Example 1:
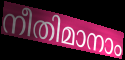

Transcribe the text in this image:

നീതിമാനാം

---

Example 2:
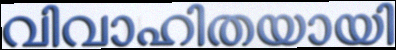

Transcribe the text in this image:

വിവാഹിതയായി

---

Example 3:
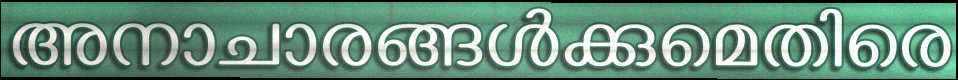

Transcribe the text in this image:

അനാചാരങ്ങൾക്കുമെതിരെ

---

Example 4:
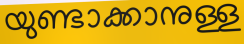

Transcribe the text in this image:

യുണ്ടാക്കാനുള്ള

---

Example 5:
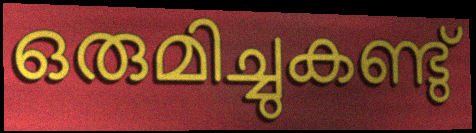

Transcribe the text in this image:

ഒരുമിച്ചുകണ്ടു്